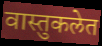
वास्तुकलेत